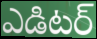
ఎడిటర్